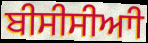
ਬੀਸੀਸੀਆੀ